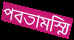
পবতামস্মি